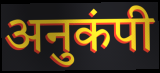
अनुकंपी